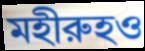
মহীরুহও